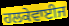
ਹਲਕੇਵਾਈਜ